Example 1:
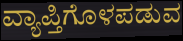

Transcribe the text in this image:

ವ್ಯಾಪ್ತಿಗೊಳಪಡುವ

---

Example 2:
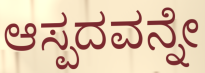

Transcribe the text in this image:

ಆಸ್ಪದವನ್ನೇ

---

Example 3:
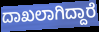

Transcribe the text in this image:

ದಾಖಲಾಗಿದ್ದಾರೆ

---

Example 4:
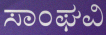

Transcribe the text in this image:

ಸಾಂಘವಿ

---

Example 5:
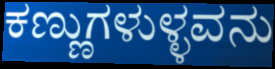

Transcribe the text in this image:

ಕಣ್ಣುಗಳುಳ್ಳವನು